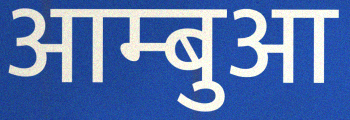
आम्बुआ